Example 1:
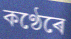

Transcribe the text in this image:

কণ্ঠেৰে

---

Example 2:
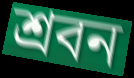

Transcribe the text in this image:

শ্ৰবন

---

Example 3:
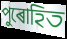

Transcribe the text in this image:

পুৰোহিত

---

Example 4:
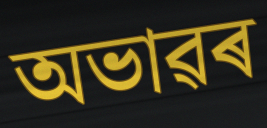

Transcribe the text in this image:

অভাৱৰ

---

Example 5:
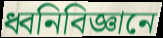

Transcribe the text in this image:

ধ্বনিবিজ্ঞানে